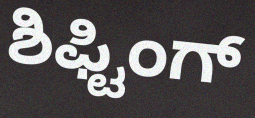
ಶಿಫ್ಟಿಂಗ್